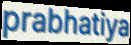
prabhatiya